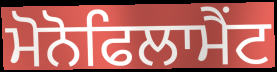
ਮੋਨੋਫਿਲਾਮੈਂਟ